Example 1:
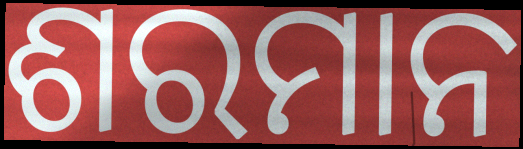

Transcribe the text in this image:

ଶରମାନ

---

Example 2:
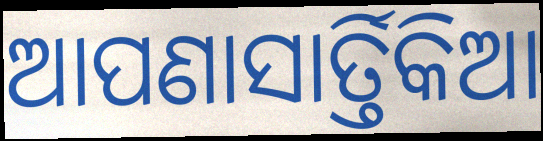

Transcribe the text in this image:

ଆପଣାସାର୍ତ୍ତିକିଆ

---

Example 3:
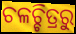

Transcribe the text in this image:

ଚଳଚ୍ଚିତ୍ରରୁ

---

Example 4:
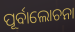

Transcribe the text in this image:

ପୂର୍ବାଲୋଚନା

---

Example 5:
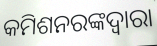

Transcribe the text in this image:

କମିଶନରଙ୍କଦ୍ୱାରା